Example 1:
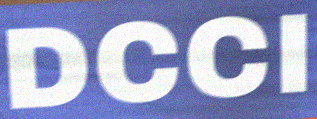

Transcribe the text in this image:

DCCI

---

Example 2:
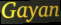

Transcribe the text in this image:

Gayan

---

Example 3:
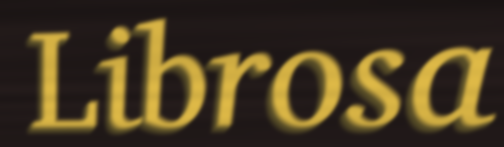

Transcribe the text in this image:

Librosa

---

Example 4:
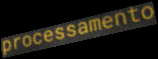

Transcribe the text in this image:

processamento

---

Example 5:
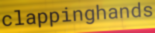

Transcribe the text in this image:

clappinghands